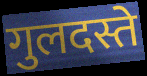
गुलदस्ते